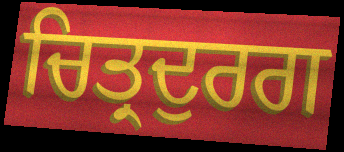
ਚਿਤ੍ਰਦੁਰਗ